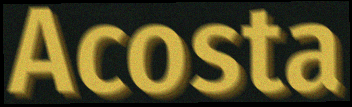
Acosta